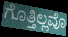
ಗೊತ್ತಿಲ್ಲವೊ